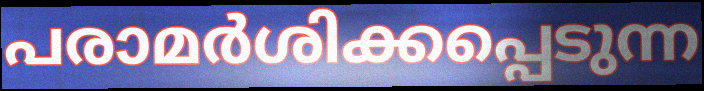
പരാമർശിക്കപ്പെടുന്ന